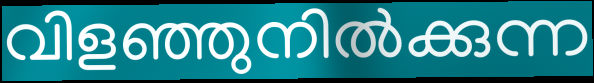
വിളഞ്ഞുനിൽക്കുന്ന